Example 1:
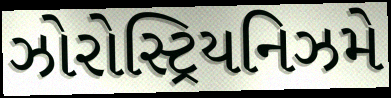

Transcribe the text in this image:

ઝોરોસ્ટ્રિયનિઝમે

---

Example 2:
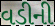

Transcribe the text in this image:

વડીની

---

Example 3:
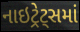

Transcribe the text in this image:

નાઇટ્રેટ્સમાં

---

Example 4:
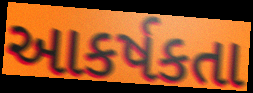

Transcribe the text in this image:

આકર્ષકતા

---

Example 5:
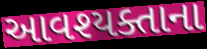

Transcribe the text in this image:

આવશ્યક્તાના